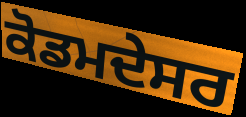
ਕੋਡਮਦੇਸਰ